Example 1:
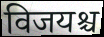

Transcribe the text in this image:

विजयश्च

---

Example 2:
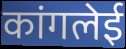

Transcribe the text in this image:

कांगलेई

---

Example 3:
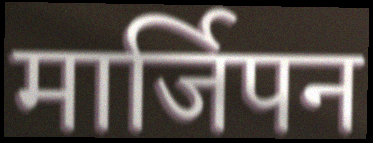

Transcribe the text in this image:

मार्जिपन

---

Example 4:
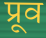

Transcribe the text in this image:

प्रूव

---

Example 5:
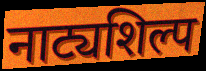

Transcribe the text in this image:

नाट्यशिल्प